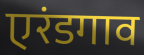
एरंडगाव